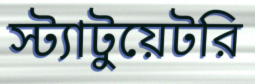
স্ট্যাটুয়েটরি